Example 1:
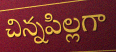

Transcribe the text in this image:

చిన్నపిల్లగా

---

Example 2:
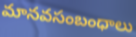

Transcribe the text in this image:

మానవసంబంధాలు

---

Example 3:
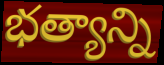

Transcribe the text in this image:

భత్యాన్ని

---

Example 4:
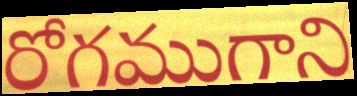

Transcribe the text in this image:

రోగముగాని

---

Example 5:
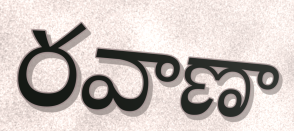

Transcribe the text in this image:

రవాణా